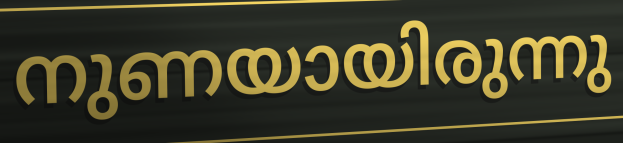
നുണയായിരുന്നു